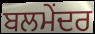
ਬਲਮੇਂਦਰ